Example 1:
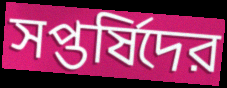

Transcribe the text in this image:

সপ্তর্ষিদের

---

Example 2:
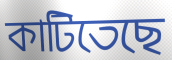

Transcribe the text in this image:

কাটিতেছে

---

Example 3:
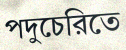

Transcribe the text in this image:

পদুচেরিতে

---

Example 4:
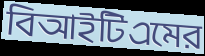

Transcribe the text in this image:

বিআইটিএমের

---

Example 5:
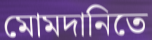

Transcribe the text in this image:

মোমদানিতে